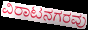
ವಿರಾಟನಗರವು